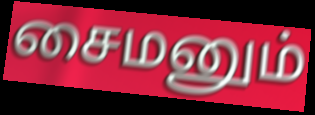
சைமனும்